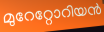
മുറേറ്റോറിയൻ